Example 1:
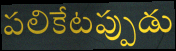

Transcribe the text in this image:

పలికేటప్పుడు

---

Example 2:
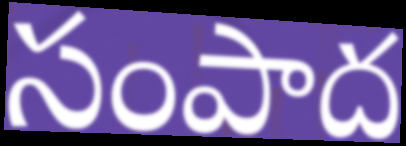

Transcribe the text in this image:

సంపాద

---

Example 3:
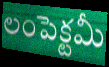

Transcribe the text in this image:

లంపెక్టమీ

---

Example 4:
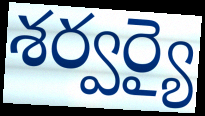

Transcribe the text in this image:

శర్వర్యై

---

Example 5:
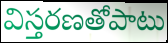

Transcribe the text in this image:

విస్తరణతోపాటు